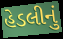
હેડલીનું